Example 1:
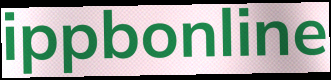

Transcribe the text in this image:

ippbonline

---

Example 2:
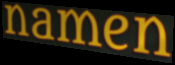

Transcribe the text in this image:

namen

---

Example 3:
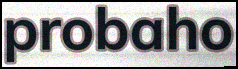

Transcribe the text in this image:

probaho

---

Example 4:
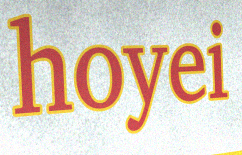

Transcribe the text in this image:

hoyei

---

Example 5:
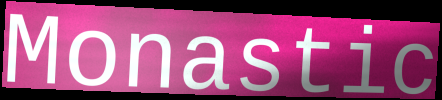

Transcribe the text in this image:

Monastic